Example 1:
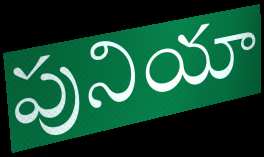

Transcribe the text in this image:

పునియా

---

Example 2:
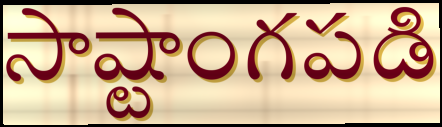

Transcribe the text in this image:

సాష్టాంగపడి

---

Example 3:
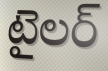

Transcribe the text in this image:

టైలర్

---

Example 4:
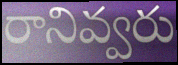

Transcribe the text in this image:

రానివ్వరు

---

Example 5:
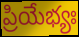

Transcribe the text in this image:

ప్రియేభ్యః